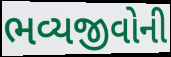
ભવ્યજીવોની